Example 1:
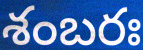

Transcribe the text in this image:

శంబరః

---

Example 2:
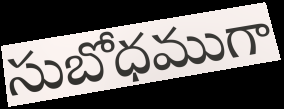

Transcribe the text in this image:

సుబోధముగా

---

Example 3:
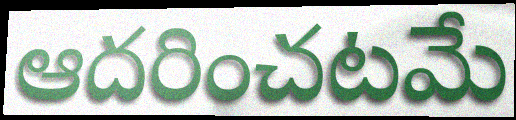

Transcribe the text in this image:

ఆదరించటమే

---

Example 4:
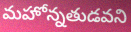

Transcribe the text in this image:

మహోన్నతుడవని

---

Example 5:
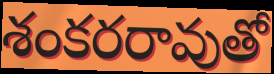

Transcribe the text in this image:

శంకరరావుతో